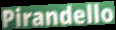
Pirandello